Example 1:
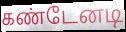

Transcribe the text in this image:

கண்டேனடி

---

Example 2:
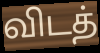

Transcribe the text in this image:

விடத்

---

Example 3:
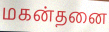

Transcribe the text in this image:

மகன்தனை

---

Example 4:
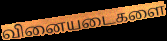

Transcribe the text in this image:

வினையடைகளை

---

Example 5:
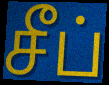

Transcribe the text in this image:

சீப்